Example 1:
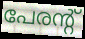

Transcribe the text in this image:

പേരന്റ്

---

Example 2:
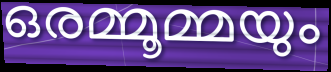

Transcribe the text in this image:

ഒരമ്മൂമ്മയും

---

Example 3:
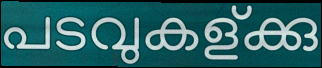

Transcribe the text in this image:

പടവുകള്ക്കു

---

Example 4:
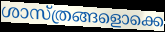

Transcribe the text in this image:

ശാസ്ത്രങ്ങളൊക്കെ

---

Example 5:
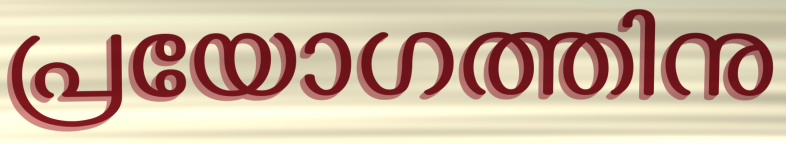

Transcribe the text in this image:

പ്രയോഗത്തിനു